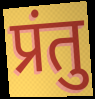
प्रंतु